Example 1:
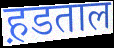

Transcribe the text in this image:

ह़डताल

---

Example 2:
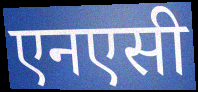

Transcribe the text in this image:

एनएसी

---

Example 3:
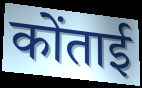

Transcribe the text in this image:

कोंताई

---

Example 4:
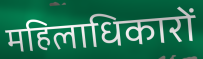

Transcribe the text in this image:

महिलाधिकारों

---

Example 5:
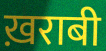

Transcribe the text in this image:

ख़राबी